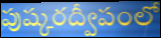
పుష్కరద్వీపంలో